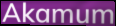
Akamum